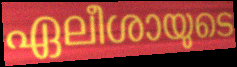
ഏലീശായുടെ